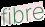
fibre